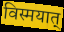
विस्मयात्